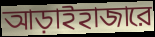
আড়াইহাজারে